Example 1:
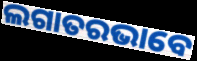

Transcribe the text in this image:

ଲଗାତରଭାବେ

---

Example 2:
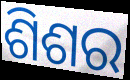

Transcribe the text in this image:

ଶିଶର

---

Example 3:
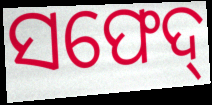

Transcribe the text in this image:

ସଫେଦ୍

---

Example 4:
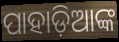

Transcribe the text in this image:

ପାହାଡ଼ିଆଙ୍କ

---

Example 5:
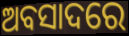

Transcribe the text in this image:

ଅବସାଦରେ